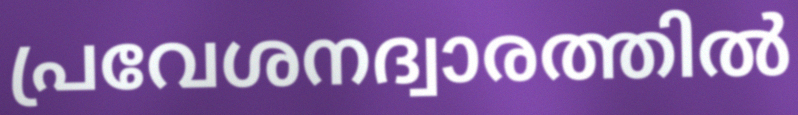
പ്രവേശനദ്വാരത്തിൽ